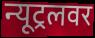
न्यूट्रलवर